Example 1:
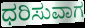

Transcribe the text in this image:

ಧರಿಸುವಾಗ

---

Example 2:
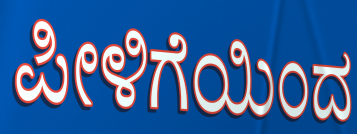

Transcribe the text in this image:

ಪೀಳಿಗೆಯಿಂದ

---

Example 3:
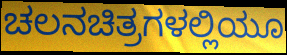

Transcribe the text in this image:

ಚಲನಚಿತ್ರಗಳಲ್ಲಿಯೂ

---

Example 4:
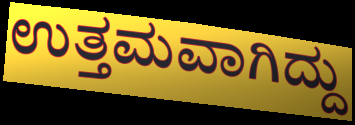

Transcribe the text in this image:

ಉತ್ತಮವಾಗಿದ್ದು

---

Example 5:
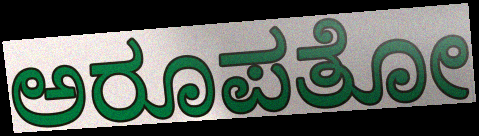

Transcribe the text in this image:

ಅರೂಪತೋ